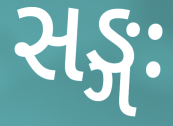
સઙ્ગઃ